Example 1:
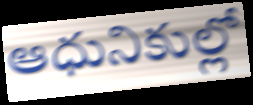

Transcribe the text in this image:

ఆధునికుల్లో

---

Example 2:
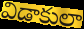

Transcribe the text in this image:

విడాకులా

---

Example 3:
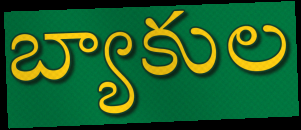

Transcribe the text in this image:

బ్యాకుల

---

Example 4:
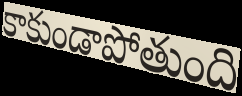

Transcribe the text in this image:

కాకుండాపోతుంది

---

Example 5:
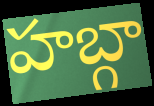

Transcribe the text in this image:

హబ్గా